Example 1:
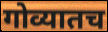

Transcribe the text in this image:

गोव्यातच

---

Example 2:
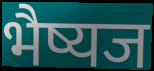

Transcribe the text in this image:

भैष्यज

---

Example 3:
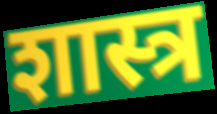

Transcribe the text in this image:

शास्त्र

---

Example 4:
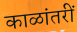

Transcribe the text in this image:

काळांतरीं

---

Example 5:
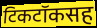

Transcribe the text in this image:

टिकटॉकसह